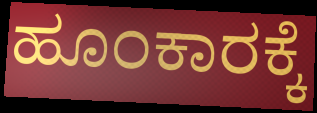
ಹೂಂಕಾರಕ್ಕೆ